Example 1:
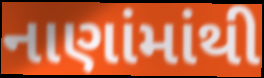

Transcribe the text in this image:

નાણાંમાંથી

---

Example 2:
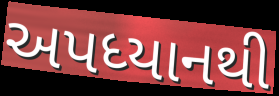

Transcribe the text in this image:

અપધ્યાનથી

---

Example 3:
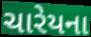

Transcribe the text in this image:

ચારેયના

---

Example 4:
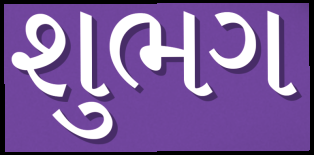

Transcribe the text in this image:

શુભગ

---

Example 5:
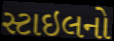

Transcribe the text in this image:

સ્ટાઇલનો